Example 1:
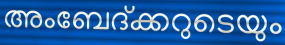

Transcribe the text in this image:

അംബേദ്ക്കറുടെയും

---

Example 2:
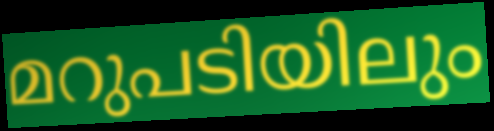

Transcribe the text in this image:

മറുപടിയിലും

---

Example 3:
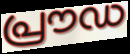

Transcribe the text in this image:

പ്രൗഡ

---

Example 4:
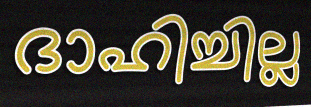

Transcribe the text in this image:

ദാഹിച്ചില്ല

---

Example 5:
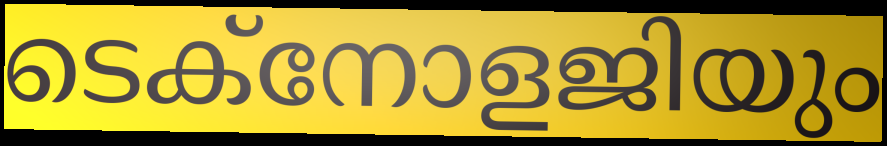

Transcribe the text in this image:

ടെക്നോളജിയും